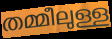
തമ്മീലുള്ള